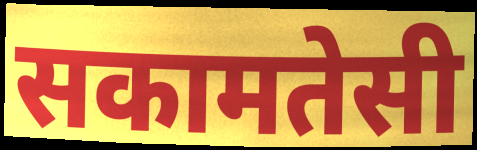
सकामतेसी